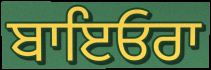
ਬਾਇਓਰਾ